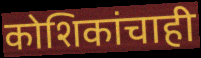
कोशिकांचाही